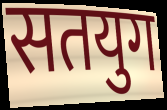
सतयुग